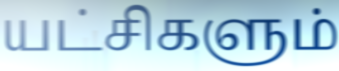
யட்சிகளும்